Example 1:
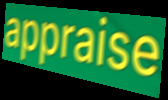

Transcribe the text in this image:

appraise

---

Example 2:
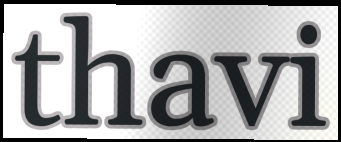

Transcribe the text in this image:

thavi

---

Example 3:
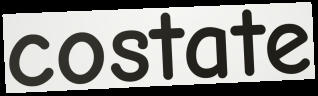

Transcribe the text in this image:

costate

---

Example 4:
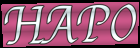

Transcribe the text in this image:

HAPO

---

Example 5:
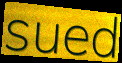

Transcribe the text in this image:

sued